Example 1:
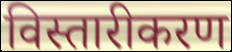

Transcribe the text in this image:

विस्तारीकरण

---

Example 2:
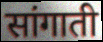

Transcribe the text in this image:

सांगाती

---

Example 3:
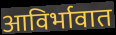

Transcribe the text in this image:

आविर्भावात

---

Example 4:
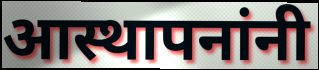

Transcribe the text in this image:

आस्थापनांनी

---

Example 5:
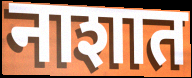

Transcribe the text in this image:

नाशात